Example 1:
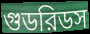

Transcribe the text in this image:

গুডরিডস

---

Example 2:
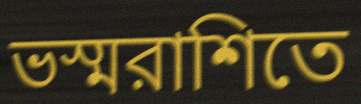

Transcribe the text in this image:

ভস্মরাশিতে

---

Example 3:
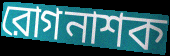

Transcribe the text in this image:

রোগনাশক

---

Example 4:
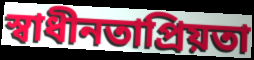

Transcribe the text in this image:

স্বাধীনতাপ্রিয়তা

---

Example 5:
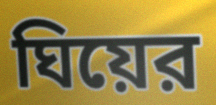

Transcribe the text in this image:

ঘিয়ের